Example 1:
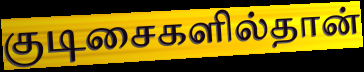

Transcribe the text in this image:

குடிசைகளில்தான்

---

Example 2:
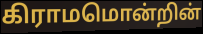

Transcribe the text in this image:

கிராமமொன்றின்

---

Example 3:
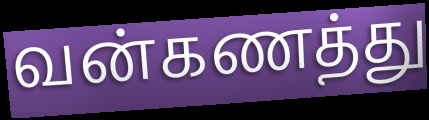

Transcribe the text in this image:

வன்கணத்து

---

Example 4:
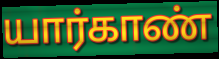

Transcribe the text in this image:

யார்காண்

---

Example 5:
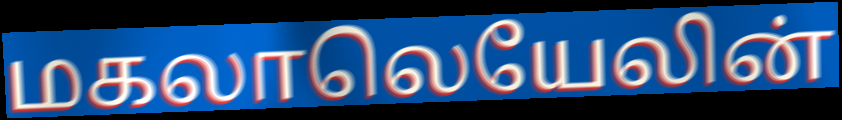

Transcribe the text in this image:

மகலாலெயேலின்